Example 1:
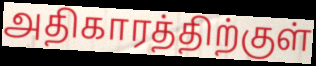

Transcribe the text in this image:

அதிகாரத்திற்குள்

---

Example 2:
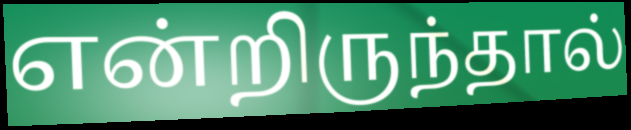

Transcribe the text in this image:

என்றிருந்தால்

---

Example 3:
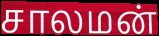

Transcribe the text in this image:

சாலமன்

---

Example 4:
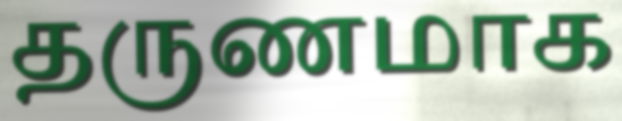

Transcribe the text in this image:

தருணமாக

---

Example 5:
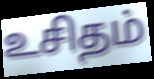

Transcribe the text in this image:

உசிதம்